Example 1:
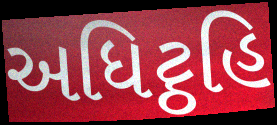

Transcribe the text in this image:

અધિટ્ઠહિ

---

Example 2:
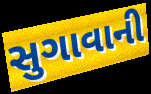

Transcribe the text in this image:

સુગાવાની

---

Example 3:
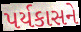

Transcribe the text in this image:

પર્યકાસને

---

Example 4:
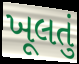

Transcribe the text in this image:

ખૂલતું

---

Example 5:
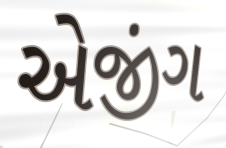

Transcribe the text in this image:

એજીંગ